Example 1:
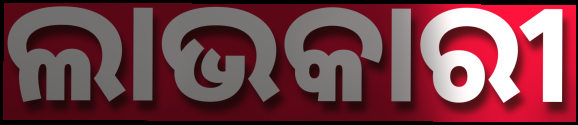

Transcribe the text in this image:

ଲାଭକାରୀ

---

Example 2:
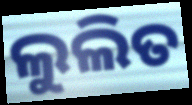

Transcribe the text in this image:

ଲୁଲିତ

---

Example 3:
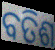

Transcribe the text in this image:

ବତିଶ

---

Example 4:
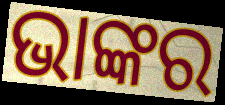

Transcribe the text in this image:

ଭାଙ୍କର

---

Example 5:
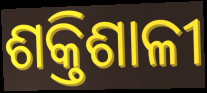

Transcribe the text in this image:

ଶକ୍ତିଶାଳୀ